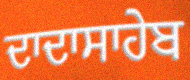
ਦਾਦਾਸਾਹੇਬ